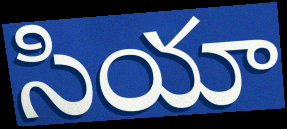
సియా